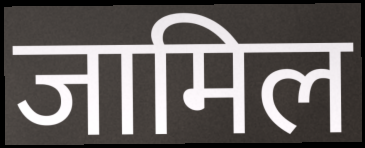
जामिल